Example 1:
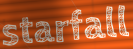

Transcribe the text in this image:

starfall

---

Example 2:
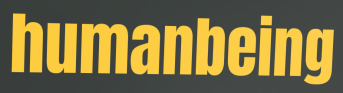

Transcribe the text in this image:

humanbeing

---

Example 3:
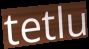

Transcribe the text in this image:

tetlu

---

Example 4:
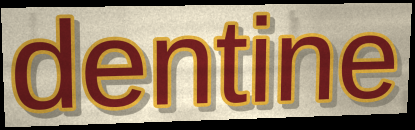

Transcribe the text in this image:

dentine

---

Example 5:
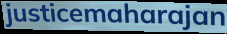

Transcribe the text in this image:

justicemaharajan